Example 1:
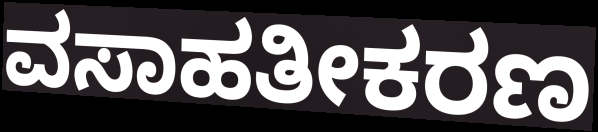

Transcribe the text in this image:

ವಸಾಹತೀಕರಣ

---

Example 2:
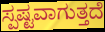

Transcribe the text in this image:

ಸ್ಪಷ್ಟವಾಗುತ್ತದೆ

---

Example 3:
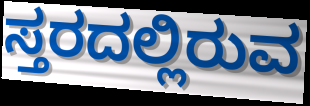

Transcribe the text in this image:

ಸ್ತರದಲ್ಲಿರುವ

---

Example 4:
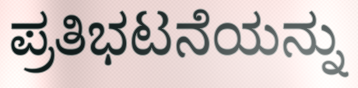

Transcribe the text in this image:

ಪ್ರತಿಭಟನೆಯನ್ನು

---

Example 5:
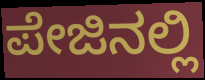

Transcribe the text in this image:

ಪೇಜಿನಲ್ಲಿ